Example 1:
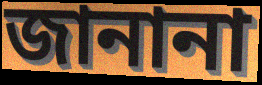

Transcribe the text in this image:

জানানা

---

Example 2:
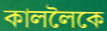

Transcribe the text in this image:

কাললৈকে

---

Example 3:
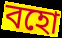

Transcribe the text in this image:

বহো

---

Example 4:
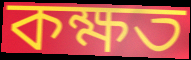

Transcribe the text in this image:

কক্ষত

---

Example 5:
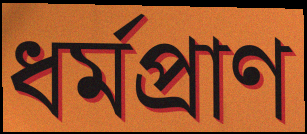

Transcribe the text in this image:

ধৰ্মপ্ৰাণ